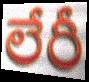
లేరీ